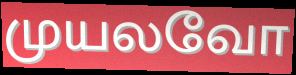
முயலவோ